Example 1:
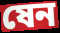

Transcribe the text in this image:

ষেন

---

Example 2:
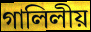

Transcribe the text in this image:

গালিলীয়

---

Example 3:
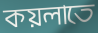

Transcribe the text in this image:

কয়লাতে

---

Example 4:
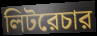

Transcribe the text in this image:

লিটরেচার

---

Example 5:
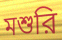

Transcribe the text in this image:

মশুরি